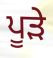
ਪੂੜੇ